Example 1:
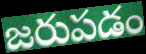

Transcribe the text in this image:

జరుపడం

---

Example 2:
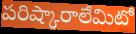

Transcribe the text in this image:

పరిష్కారాలేమిటో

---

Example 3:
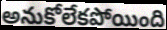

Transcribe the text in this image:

అనుకోలేకపోయింది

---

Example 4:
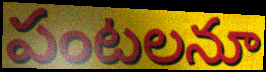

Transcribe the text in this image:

పంటలనూ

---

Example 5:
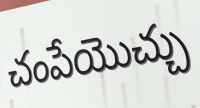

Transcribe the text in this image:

చంపేయొచ్చు